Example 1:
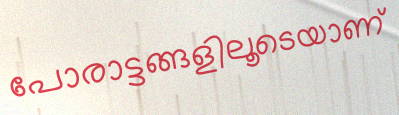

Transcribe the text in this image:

പോരാട്ടങ്ങളിലൂടെയാണ്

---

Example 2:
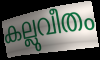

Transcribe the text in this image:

കല്ലുവീതം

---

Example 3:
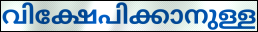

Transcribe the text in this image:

വിക്ഷേപിക്കാനുള്ള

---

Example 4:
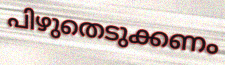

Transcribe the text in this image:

പിഴുതെടുക്കണം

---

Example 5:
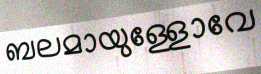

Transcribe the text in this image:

ബലമായുള്ളോവേ